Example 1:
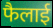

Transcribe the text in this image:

फैलाई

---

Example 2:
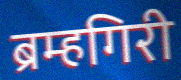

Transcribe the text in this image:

ब्रम्हगिरी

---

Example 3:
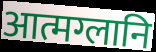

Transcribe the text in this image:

आत्मग्लानि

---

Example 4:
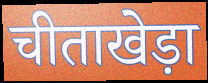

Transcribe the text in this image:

चीताखेड़ा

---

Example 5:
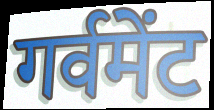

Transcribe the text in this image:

गर्वमेंट